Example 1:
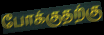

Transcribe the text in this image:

போக்குதற்கு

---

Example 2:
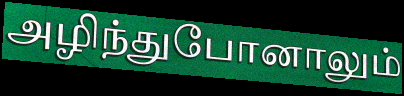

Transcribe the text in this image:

அழிந்துபோனாலும்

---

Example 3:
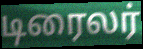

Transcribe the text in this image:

டிரைலர்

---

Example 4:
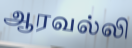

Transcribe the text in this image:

ஆரவல்லி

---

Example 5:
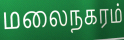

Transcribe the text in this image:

மலைநகரம்